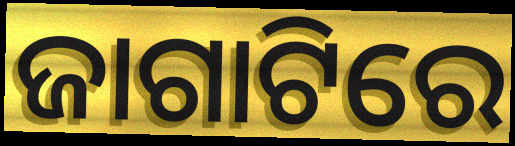
ଜାଗାଟିରେ